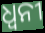
ଧ୍ବନୀ